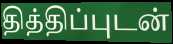
தித்திப்புடன்